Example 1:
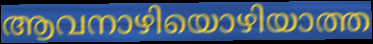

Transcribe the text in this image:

ആവനാഴിയൊഴിയാത്ത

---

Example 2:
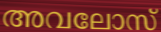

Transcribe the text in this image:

അവലോസ്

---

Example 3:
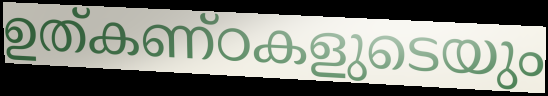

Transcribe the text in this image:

ഉത്കണ്ഠകളുടെയും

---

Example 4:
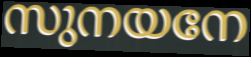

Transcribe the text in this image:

സുനയനേ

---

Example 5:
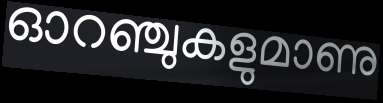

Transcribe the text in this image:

ഓറഞ്ചുകളുമാണു